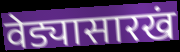
वेड्यासारखं